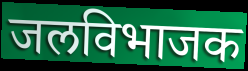
जलविभाजक